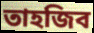
তাহজিব